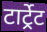
टार्ट्रेट